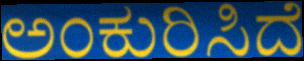
ಅಂಕುರಿಸಿದೆ